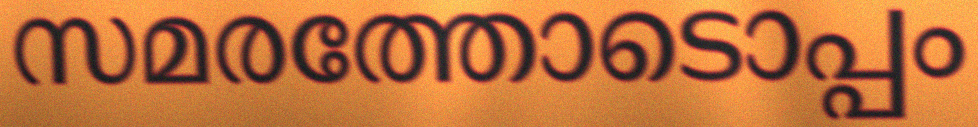
സമരത്തോടൊപ്പം